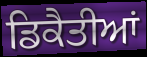
ਡਿਕੈਤੀਆਂ